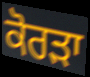
ਕੋਰੜਾ